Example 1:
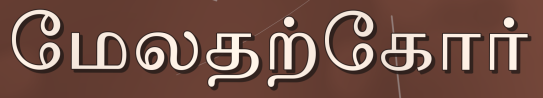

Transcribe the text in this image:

மேலதற்கோர்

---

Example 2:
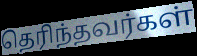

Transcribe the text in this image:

தெரிந்தவர்கள்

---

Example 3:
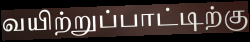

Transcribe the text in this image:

வயிற்றுப்பாட்டிற்கு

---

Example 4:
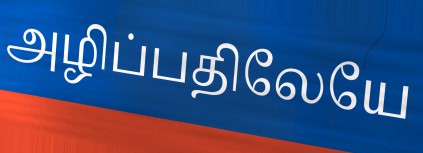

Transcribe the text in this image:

அழிப்பதிலேயே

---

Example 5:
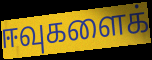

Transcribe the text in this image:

ஈவுகளைக்